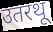
उतरथू